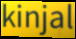
kinjal